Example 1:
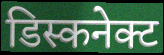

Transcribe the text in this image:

डिस्कनेक्ट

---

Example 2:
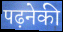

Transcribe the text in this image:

पढ़नेकी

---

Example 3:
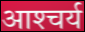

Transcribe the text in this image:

आश्‍चर्य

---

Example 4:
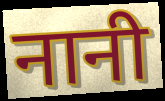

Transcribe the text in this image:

नानी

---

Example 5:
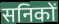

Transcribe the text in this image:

सनिकों